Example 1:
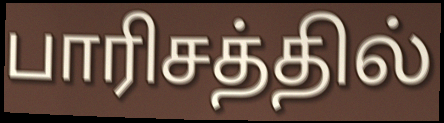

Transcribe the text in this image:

பாரிசத்தில்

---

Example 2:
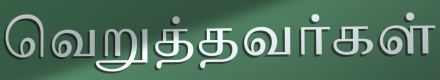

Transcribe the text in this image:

வெறுத்தவர்கள்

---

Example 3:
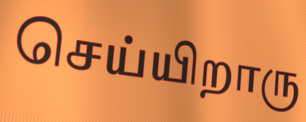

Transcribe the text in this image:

செய்யிறாரு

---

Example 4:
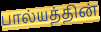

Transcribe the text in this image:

பால்யத்தின்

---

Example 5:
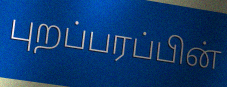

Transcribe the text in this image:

புறப்பரப்பின்